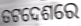
ତଟଦେଶରେ